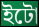
ইটো